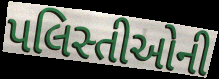
પલિસ્તીઓની